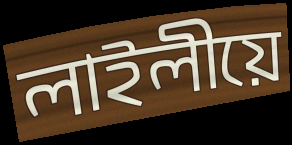
লাইলীয়ে